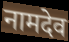
नामदेव